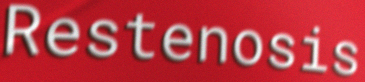
Restenosis